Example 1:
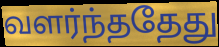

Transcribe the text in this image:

வளர்ந்ததேது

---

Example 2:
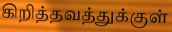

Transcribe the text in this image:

கிறித்தவத்துக்குள்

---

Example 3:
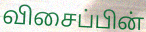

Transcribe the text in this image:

விசைப்பின்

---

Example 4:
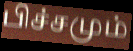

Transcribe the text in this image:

பிச்சமும்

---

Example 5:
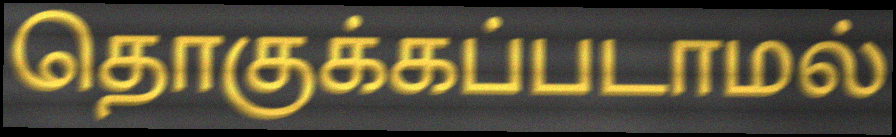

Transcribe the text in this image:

தொகுக்கப்படாமல்